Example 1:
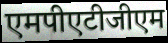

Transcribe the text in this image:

एमपीएटीजीएम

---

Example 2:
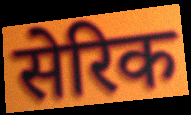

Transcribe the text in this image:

सेरिक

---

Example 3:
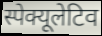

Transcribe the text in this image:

स्पेक्यूलेटिव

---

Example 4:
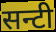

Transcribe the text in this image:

सन्टी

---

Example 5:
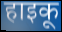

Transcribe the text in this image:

हाइकू